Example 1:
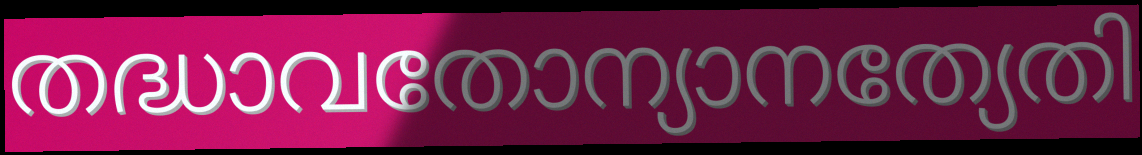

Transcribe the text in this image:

തദ്ധാവതോന്യാനത്യേതി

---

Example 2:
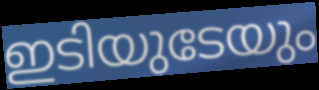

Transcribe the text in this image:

ഇടിയുടേയും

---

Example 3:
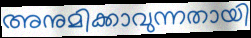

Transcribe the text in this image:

അനുമിക്കാവുന്നതായി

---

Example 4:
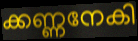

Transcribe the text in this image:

ക്കണ്ണനേകി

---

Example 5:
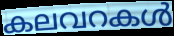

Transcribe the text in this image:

കലവറകൾ